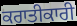
ਕਰਾਤੀਕਾਰੀ